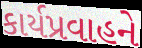
કાર્યપ્રવાહને